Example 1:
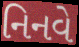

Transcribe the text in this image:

નિનવે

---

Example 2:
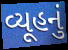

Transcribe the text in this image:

વ્યૂહનું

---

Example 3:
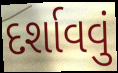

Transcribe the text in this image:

દર્શાવવું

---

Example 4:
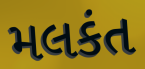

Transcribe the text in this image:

મલકંત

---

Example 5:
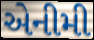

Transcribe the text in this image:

એનીમી